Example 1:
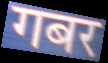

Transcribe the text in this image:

गबर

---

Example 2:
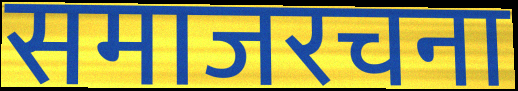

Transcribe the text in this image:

समाजरचना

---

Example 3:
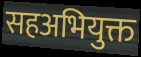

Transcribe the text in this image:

सहअभियुक्त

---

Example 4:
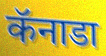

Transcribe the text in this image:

कॅनाडा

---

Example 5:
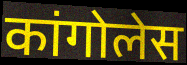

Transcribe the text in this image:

कांगोलेस